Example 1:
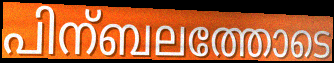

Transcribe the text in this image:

പിന്ബലത്തോടെ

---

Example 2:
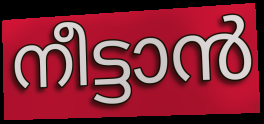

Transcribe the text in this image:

നീട്ടാൻ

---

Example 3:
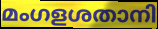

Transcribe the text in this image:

മംഗളശതാനി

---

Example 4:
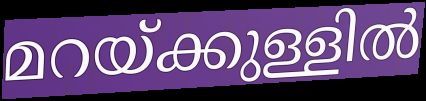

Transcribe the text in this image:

മറയ്ക്കുള്ളിൽ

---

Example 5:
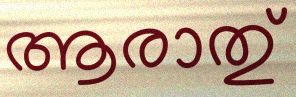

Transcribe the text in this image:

ആരാതു്